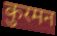
कुरमन